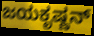
ಜಯಕೃಷ್ಣನ್